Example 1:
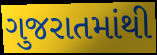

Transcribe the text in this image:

ગુજરાતમાંથી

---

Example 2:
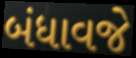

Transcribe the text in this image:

બંધાવજે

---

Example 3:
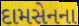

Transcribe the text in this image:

દામસેનના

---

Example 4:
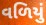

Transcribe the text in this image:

વળિયું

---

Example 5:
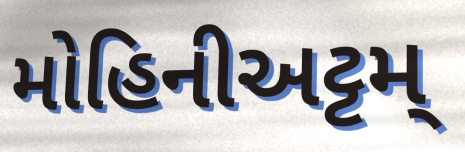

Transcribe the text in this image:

મોહિનીઅટ્ટમ્